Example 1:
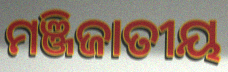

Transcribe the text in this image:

ମଞ୍ଜିଜାତୀୟ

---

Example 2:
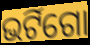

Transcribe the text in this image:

ଭର୍ଟିଗୋ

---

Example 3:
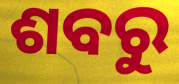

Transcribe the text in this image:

ଶବରୁ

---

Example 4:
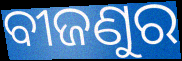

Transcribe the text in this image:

ବୀଜଣୁର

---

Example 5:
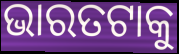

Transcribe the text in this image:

ଭାରତଟାକୁ